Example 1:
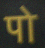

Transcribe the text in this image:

पो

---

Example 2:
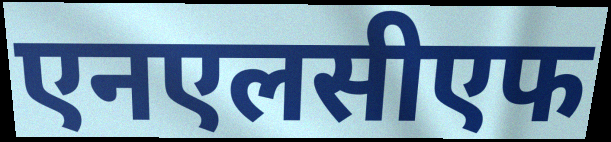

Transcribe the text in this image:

एनएलसीएफ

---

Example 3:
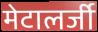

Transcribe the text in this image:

मेटालर्जी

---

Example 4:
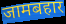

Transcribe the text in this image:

जामबहार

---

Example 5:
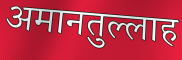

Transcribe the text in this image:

अमानतुल्लाह